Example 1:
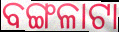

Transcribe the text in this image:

ବଙ୍ଗଳାଟା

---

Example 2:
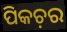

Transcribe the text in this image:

ପିକଚ଼ର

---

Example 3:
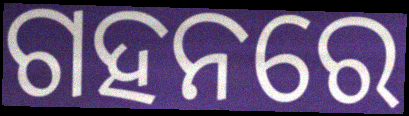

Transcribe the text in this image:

ଗହନରେ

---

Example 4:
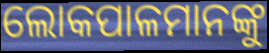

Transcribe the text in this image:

ଲୋକପାଳମାନଙ୍କୁ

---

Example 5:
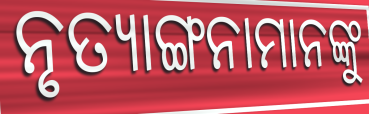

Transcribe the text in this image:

ନୃତ୍ୟାଙ୍ଗନାମାନଙ୍କୁ